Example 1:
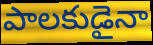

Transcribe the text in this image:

పాలకుడైనా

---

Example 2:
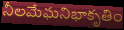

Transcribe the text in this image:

నీలమేఘనిభాకృతిం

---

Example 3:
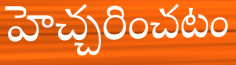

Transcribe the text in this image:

హెచ్చరించటం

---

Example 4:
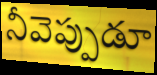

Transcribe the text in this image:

నీవెప్పుడూ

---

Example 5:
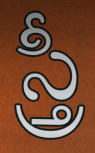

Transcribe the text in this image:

స్త్రీ